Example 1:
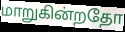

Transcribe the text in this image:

மாறுகின்றதோ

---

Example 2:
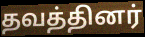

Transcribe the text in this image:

தவத்தினர்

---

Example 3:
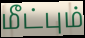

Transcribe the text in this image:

மீட்பும்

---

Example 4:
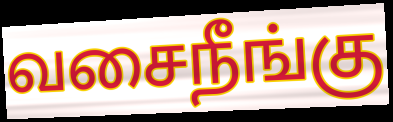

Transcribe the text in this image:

வசைநீங்கு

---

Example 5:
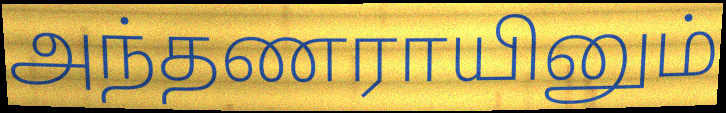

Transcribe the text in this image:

அந்தணராயினும்